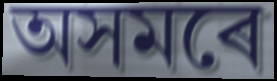
অসমৰে